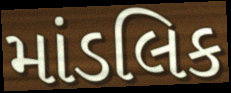
માંડલિક